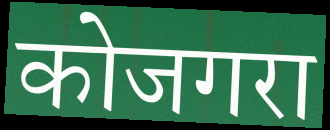
कोजगरा